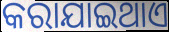
କରାଯାଇଥାଏ